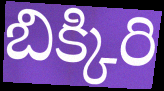
బిక్కిరి